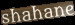
shahane